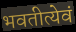
भवतीत्येवं